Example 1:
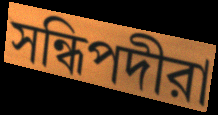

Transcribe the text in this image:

সন্ধিপদীরা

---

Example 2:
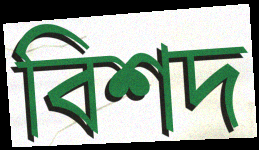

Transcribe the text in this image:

বিশদ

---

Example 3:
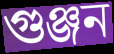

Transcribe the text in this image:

গুঞ্জন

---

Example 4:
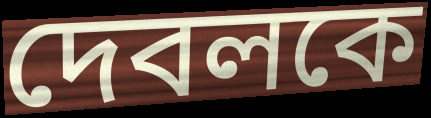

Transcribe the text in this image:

দেবলকে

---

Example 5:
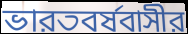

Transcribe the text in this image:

ভারতবর্ষবাসীর